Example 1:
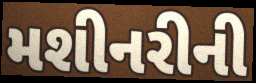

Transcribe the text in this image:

મશીનરીની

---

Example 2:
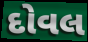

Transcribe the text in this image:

દોવલ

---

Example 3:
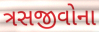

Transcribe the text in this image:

ત્રસજીવોના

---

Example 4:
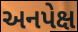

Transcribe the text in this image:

અનપેક્ષ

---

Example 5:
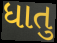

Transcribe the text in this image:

ધાતુ